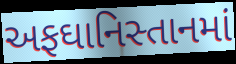
અફઘાનિસ્તાનમાં